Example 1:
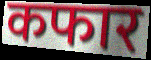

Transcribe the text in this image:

कफार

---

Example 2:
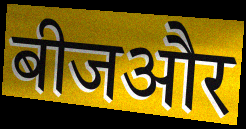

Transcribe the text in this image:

बीजऔर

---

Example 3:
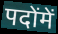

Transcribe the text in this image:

पदोंमें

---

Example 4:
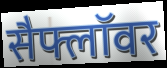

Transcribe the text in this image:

सैफ्लॉवर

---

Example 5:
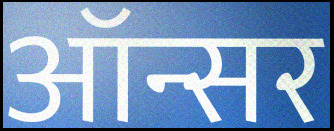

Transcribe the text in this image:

ऑन्सर